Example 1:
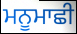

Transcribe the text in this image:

ਮਨੂਮਾਛੀ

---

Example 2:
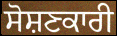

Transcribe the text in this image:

ਸੋਸ਼ਣਕਾਰੀ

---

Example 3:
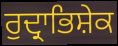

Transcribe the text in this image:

ਰੁਦ੍ਰਾਭਿਸ਼ੇਕ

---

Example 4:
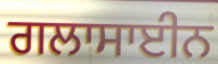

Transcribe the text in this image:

ਗਲਾਸਾਈਨ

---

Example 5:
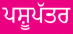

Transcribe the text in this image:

ਪਸ਼ੂਪੱਤਰ